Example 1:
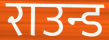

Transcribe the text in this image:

राउन्ड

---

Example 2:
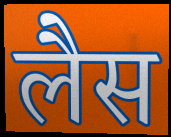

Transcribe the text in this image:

लैस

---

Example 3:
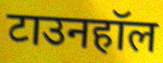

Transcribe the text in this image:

टाउनहॉल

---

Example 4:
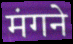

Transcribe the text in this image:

मंगने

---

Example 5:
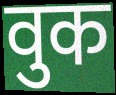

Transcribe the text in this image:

वुक